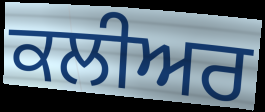
ਕਲੀਅਰ